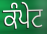
ਕੰਪੇਟ